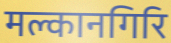
मल्कानगिरि